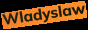
Wladyslaw